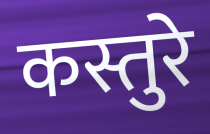
कस्तुरे